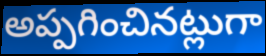
అప్పగించినట్లుగా